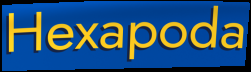
Hexapoda